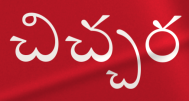
చిచ్చర